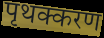
पृथक्करण